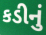
કડીનું